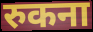
रुकना